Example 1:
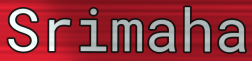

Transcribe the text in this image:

Srimaha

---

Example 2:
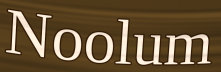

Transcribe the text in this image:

Noolum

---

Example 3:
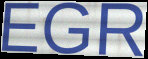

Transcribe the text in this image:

EGR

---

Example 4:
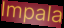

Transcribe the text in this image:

Impala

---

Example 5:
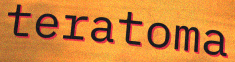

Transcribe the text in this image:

teratoma